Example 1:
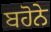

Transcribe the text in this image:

ਬਹੋਨੇ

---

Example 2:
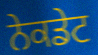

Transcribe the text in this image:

ਨੇਕਡੇਟ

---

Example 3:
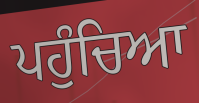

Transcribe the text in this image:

ਪਹੁੰਚਿਆ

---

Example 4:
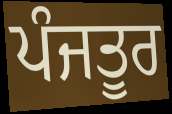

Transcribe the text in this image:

ਪੰਜਤੂਰ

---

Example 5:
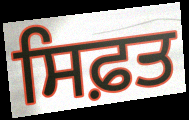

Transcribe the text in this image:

ਸਿਫ਼ਤ